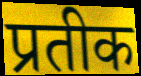
प्रतीक